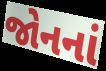
જોનનાં